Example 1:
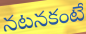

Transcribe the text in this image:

నటనకంటే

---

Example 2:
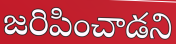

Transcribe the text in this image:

జరిపించాడని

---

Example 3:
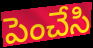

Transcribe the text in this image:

పెంచేసి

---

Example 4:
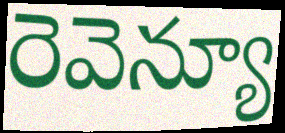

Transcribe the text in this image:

రెవెన్యూ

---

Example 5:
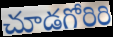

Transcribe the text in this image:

చూడగోరిరి